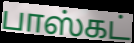
பாஸ்கட்